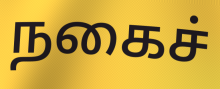
நகைச்